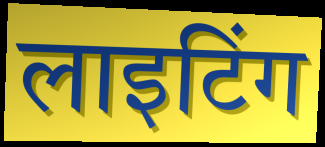
लाइटिंग